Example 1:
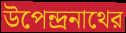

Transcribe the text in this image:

উপেন্দ্রনাথের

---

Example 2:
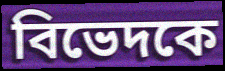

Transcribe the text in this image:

বিভেদকে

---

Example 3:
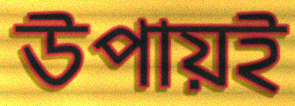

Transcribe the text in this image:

উপায়ই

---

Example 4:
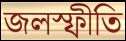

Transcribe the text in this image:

জলস্ফীতি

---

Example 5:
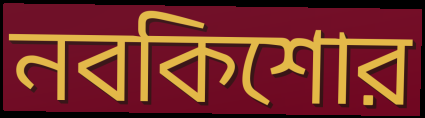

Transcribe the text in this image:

নবকিশোর